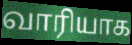
வாரியாக